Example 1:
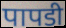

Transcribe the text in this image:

पापडी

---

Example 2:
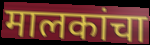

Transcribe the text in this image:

मालकांचा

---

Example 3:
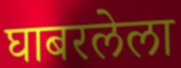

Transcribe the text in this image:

घाबरलेला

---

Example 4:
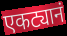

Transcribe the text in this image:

एकट्यानं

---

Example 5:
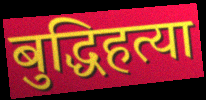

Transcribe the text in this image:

बुद्धिहत्या